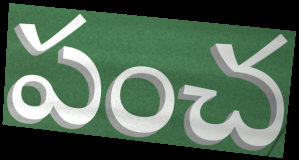
పంచ